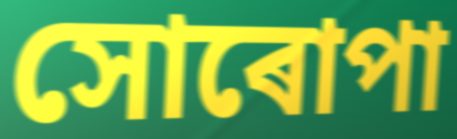
সোৰোপা